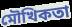
মৌখিকতা